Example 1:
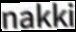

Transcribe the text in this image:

nakki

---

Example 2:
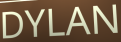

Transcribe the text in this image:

DYLAN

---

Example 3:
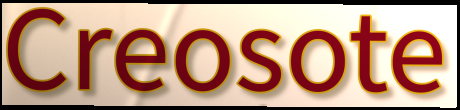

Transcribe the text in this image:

Creosote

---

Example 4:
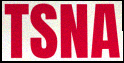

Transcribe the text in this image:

TSNA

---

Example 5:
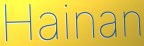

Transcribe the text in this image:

Hainan